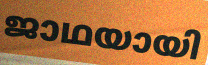
ജാഥയായി